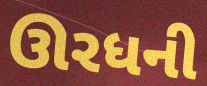
ઊરધની